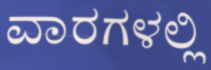
ವಾರಗಳಲ್ಲಿ